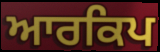
ਆਰਕਿਪ